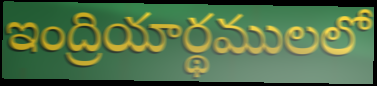
ఇంద్రియార్థములలో